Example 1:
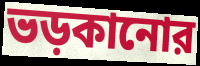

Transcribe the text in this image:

ভড়কানোর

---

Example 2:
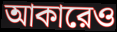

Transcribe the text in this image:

আকারেও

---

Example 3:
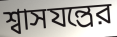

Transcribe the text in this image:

শ্বাসযন্ত্রের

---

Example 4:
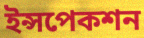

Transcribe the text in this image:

ইন্সপেকশন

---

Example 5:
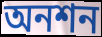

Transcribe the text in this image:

অনশন